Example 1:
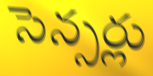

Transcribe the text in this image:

సెన్సర్లు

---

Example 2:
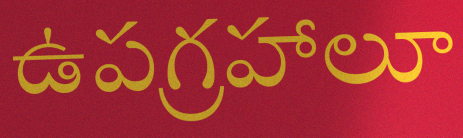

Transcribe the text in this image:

ఉపగ్రహాలూ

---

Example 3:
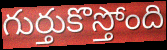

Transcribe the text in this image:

గుర్తుకొస్తోంది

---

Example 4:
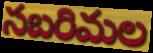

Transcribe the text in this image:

సబరిమల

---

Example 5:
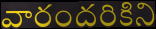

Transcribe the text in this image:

వారందరికిని